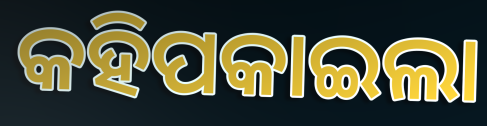
କହିପକାଇଲା